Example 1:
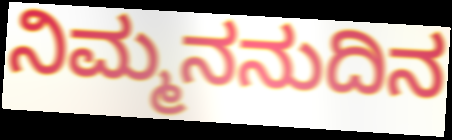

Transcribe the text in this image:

ನಿಮ್ಮನನುದಿನ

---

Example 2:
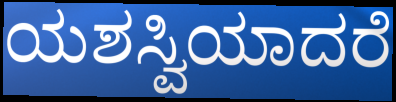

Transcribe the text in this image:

ಯಶಸ್ವಿಯಾದರೆ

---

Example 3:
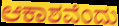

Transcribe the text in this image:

ಆಕಾಶವೆಂದು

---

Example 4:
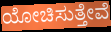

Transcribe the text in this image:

ಯೋಚಿಸುತ್ತೇವೆ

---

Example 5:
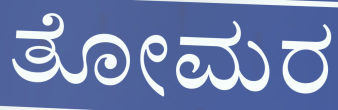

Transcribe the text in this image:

ತೋಮರ